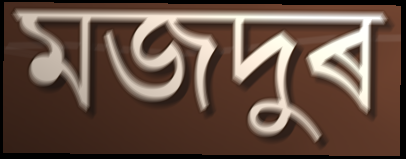
মজদুৰ